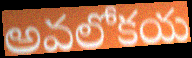
అవలోకయ